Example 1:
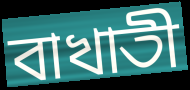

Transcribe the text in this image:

বাখাতী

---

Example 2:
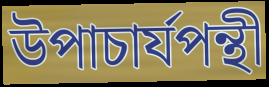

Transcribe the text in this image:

উপাচার্যপন্থী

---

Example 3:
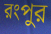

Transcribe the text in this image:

রংপুর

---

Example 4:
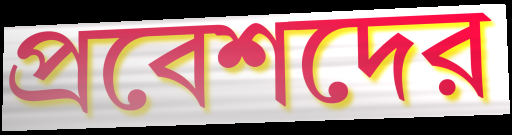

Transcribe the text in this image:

প্রবেশদের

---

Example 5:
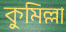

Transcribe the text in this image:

কুমিল্লা